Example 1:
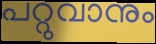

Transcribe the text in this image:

പറ്റുവാനും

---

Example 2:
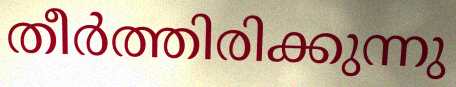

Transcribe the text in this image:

തീർത്തിരിക്കുന്നു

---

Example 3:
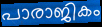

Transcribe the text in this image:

പാരാജികം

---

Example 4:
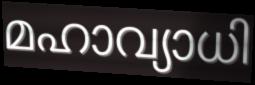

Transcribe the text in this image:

മഹാവ്യാധി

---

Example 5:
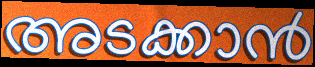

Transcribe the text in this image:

അടക്കാൻ